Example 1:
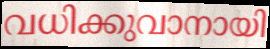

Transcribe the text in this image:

വധിക്കുവാനായി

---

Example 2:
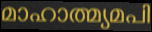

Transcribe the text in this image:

മാഹാത്മ്യമപി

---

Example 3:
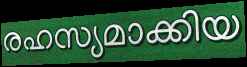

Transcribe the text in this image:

രഹസ്യമാക്കിയ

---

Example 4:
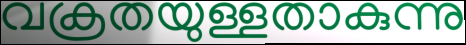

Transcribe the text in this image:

വക്രതയുള്ളതാകുന്നു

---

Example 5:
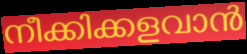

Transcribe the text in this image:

നീക്കിക്കളവാൻ